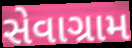
સેવાગ્રામ